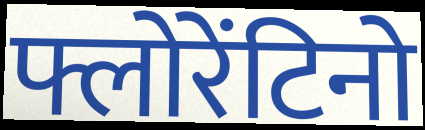
फ्लोरेंटिनो